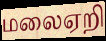
மலைஏறி